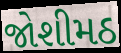
જોશીમઠ